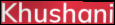
Khushani